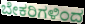
ಬೇಕರಿಗಳಿಂದ